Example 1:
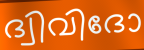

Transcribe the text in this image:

ദ്വിവിദോ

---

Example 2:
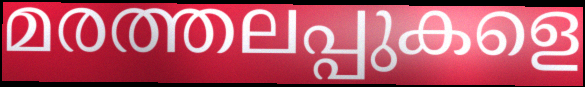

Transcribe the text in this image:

മരത്തലപ്പുകളെ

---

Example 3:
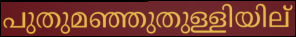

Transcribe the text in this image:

പുതുമഞ്ഞുതുള്ളിയില്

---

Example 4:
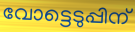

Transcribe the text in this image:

വോട്ടെടുപ്പിന്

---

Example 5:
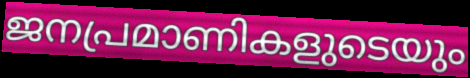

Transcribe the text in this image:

ജനപ്രമാണികളുടെയും